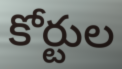
కోర్టుల